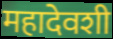
महादेवशी